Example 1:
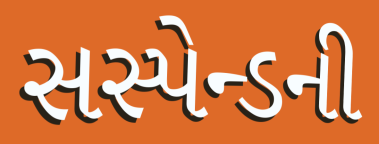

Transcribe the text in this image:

સસ્પેન્ડની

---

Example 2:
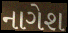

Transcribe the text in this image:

નાગેશ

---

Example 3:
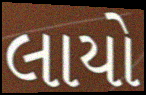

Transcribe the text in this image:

લાયો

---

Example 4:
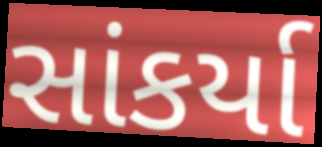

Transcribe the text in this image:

સાંકર્યા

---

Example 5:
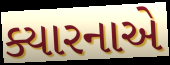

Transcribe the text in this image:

ક્યારનાએ